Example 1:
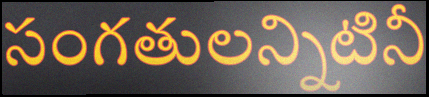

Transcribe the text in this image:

సంగతులన్నిటినీ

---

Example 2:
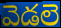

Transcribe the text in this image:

వెడలె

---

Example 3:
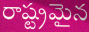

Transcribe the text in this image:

రాష్ట్రమైన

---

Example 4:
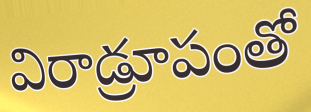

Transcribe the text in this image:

విరాడ్రూపంతో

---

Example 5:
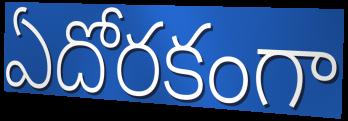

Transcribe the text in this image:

ఏదోరకంగా